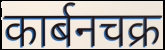
कार्बनचक्र